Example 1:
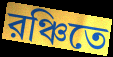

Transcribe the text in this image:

রঞ্চিতে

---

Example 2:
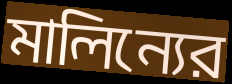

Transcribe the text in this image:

মালিন্যের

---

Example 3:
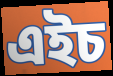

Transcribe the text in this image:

এইচ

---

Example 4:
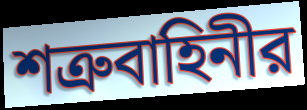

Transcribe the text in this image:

শত্রুবাহিনীর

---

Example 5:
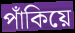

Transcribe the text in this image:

পাঁকিয়ে